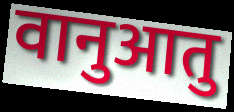
वानुआतु